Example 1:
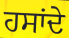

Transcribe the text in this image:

ਹਸਾਂਦੇ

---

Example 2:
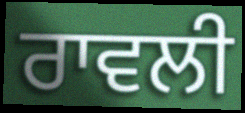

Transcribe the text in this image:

ਰਾਵਲੀ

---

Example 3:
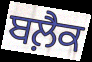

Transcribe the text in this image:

ਬਲ਼ੈਕ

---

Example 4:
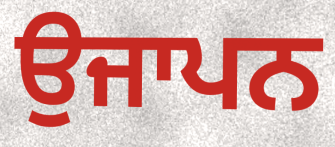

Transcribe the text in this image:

ਉਜਾਪਨ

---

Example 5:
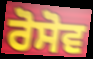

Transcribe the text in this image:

ਰੋਸੋਵ